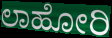
ಲಾಹೋರಿ